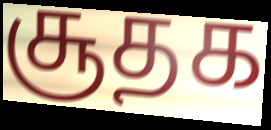
சூதக